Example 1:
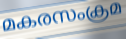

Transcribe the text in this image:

മകരസംക്രമ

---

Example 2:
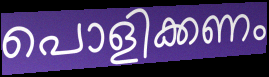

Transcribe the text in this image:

പൊളിക്കണം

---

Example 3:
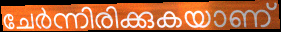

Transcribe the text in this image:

ചേർന്നിരിക്കുകയാണ്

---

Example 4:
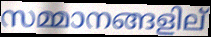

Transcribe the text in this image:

സമ്മാനങ്ങളില്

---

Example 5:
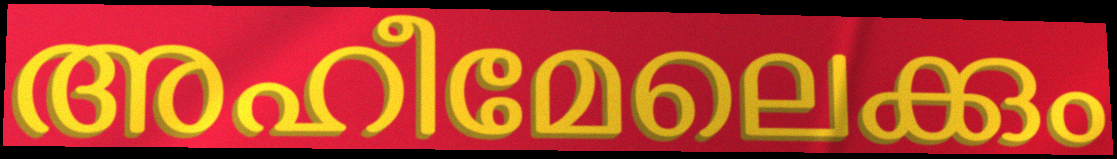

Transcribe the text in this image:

അഹീമേലെക്കും